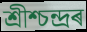
শ্ৰীশ্চন্দ্ৰৰ